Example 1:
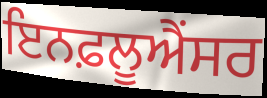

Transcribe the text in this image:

ਇਨਫ਼ਲੂਐਂਸਰ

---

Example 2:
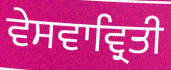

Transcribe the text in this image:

ਵੇਸਵਾਵ੍ਰਿਤੀ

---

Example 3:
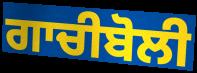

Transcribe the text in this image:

ਗਾਚੀਬੋਲੀ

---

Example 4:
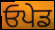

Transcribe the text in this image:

ਓਪੇਡ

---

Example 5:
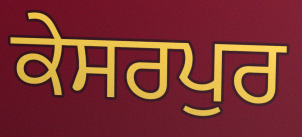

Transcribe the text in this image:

ਕੇਸਰਪੁਰ